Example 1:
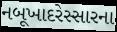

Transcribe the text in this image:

નબૂખાદરેસ્સારના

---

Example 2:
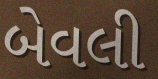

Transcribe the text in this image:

બેવલી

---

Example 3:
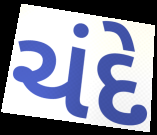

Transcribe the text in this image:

ચંદે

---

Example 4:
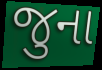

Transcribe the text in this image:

જુના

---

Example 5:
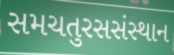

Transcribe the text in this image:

સમચતુરસસંસ્થાન